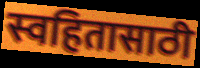
स्वहितासाठी